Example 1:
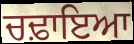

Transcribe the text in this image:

ਚਢ਼ਾਇਆ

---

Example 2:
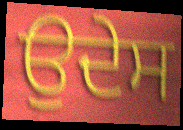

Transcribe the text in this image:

ਉਦੇਸ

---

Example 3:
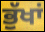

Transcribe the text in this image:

ਭੁੱਖਾਂ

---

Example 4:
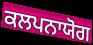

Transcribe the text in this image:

ਕਲਪਨਾਯੋਗ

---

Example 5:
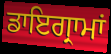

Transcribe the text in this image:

ਡਾਇਗ੍ਰਾਮਾਂ